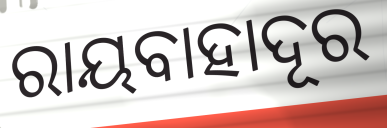
ରାୟବାହାଦୂର